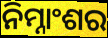
ନିମ୍ନାଂଶର